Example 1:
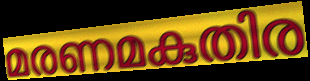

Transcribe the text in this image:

മരണമകുതിര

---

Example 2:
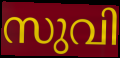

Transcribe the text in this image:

സുവി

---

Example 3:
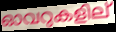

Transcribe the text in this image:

ഓവറുകളില്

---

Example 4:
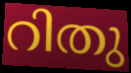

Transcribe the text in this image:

റിതു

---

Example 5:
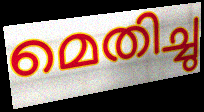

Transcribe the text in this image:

മെതിച്ചു